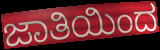
ಜಾತಿಯಿಂದ